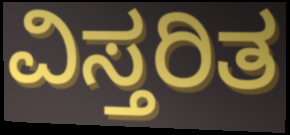
ವಿಸ್ತರಿತ